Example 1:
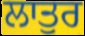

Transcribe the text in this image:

ਲਾਤੁਰ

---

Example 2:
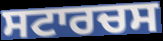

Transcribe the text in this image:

ਸਟਾਰਚਸ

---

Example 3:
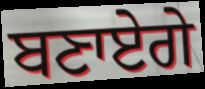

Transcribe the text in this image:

ਬਣਾਏਗੇ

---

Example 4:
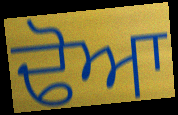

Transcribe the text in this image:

ਢੋਆ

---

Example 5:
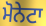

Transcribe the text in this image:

ਮੋਨੇਟਾ